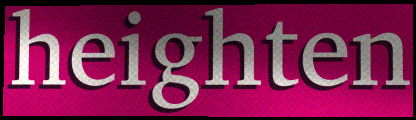
heighten